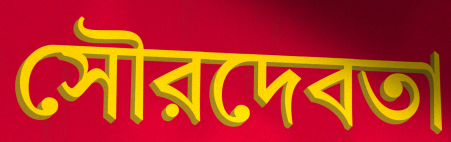
সৌরদেবতা